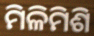
ମିଳିମିଶି